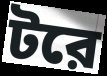
টরে